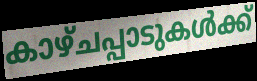
കാഴ്ചപ്പാടുകൾക്ക്